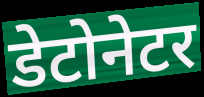
डेटोनेटर